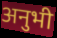
अनुभी